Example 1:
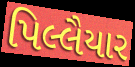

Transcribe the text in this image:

પિલ્લૈયાર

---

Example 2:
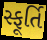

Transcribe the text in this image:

સ્ફૂર્તિ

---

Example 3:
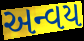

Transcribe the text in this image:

અન્વય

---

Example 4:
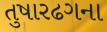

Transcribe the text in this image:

તુષારઢગના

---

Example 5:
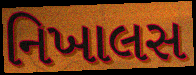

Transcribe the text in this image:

નિખાલસ